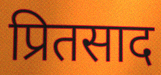
प्रितसाद